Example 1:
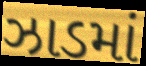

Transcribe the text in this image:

ઝાડમાં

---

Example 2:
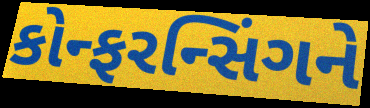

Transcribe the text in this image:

કોન્ફરન્સિંગને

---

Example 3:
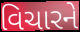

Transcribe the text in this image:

વિચારને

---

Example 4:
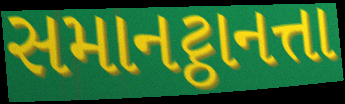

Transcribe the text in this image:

સમાનટ્ઠાનત્તા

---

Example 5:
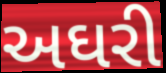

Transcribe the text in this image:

અઘરી